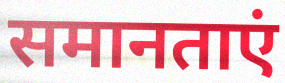
समानताएं